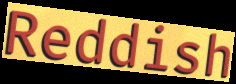
Reddish